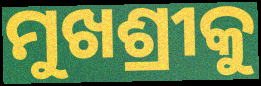
ମୁଖଶ୍ରୀକୁ